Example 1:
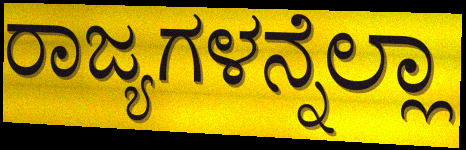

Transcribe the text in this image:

ರಾಜ್ಯಗಳನ್ನೆಲ್ಲಾ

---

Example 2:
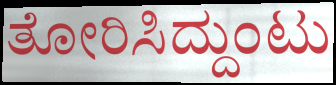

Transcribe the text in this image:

ತೋರಿಸಿದ್ದುಂಟು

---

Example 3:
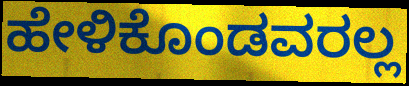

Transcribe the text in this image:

ಹೇಳಿಕೊಂಡವರಲ್ಲ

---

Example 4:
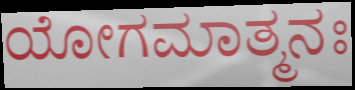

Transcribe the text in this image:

ಯೋಗಮಾತ್ಮನಃ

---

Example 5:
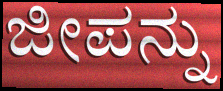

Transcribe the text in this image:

ಜೀಪನ್ನು